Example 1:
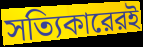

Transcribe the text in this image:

সত্যিকারেরই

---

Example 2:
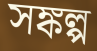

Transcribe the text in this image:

সঙ্কল্প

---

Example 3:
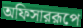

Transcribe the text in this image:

অফিসাররূপে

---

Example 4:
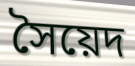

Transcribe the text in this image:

সৈয়েদ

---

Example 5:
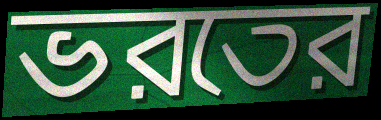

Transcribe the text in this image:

ভরতের